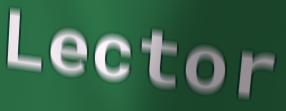
Lector